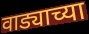
वाड्याच्या